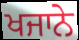
ਖਜਾਨੇ